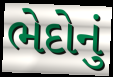
ભેદોનું